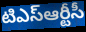
టిఎస్ఆర్టీసీ